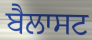
ਬੈਲਾਸਟ